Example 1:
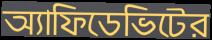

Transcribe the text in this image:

অ্যাফিডেভিটের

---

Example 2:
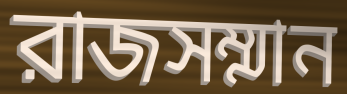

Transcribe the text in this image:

রাজসম্মান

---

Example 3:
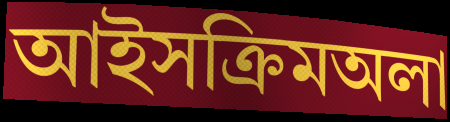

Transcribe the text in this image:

আইসক্রিমঅলা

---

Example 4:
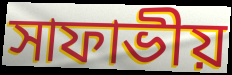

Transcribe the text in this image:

সাফাভীয়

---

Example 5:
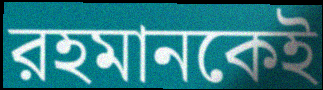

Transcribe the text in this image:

রহমানকেই